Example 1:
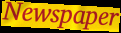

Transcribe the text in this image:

Newspaper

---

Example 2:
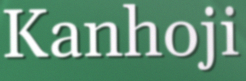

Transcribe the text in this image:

Kanhoji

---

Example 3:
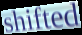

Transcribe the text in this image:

shifted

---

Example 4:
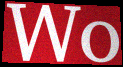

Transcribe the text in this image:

Wo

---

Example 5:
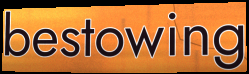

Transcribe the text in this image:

bestowing